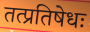
तत्प्रतिषेधः